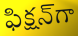
ఫిక్షన్‌గా